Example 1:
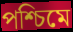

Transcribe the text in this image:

পশ্চিমে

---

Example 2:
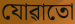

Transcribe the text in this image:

যোৱাতো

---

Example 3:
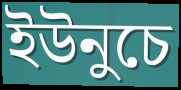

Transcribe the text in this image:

ইউনুচে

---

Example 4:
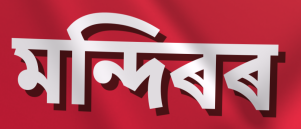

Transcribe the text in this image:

মন্দিৰৰ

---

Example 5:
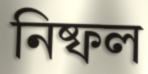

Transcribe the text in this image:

নিষ্ফল